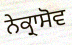
ਨੇਕ੍ਰਾਸੋਵ